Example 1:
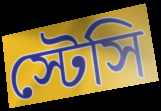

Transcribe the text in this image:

স্টেসি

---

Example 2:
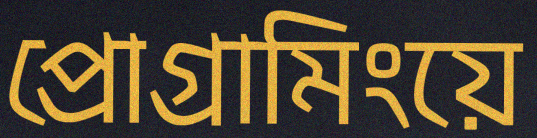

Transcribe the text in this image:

প্রোগ্রামিংয়ে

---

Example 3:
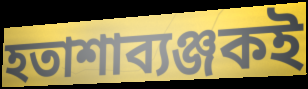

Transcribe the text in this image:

হতাশাব্যঞ্জকই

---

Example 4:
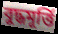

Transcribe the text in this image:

বুদ্ধমূর্ত্তি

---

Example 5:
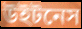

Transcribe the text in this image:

উইটনেস